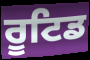
ਰੂਟਿਡ